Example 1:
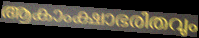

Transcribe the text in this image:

ആകാംക്ഷാഭരിതവും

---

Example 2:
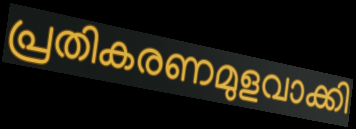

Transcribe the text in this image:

പ്രതികരണമുളവാക്കി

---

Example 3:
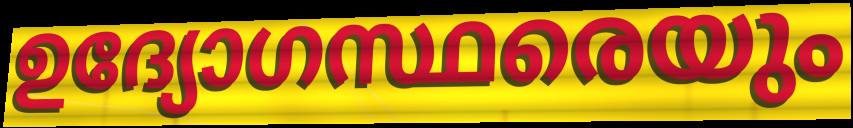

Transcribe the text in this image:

ഉദ്യോഗസ്ഥരെയും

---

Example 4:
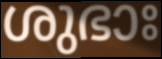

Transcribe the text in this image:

ശുഭാഃ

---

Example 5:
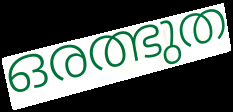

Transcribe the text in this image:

ഒരത്ഭുത